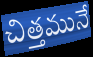
చిత్తమునే